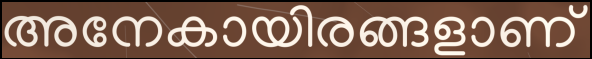
അനേകായിരങ്ങളാണ്